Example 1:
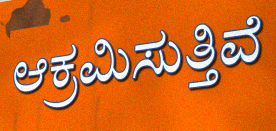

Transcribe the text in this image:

ಆಕ್ರಮಿಸುತ್ತಿವೆ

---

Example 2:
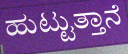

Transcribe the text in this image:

ಹುಟ್ಟುತ್ತಾನೆ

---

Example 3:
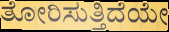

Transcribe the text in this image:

ತೋರಿಸುತ್ತಿದೆಯೇ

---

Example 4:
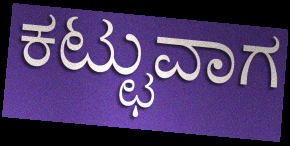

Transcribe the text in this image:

ಕಟ್ಟುವಾಗ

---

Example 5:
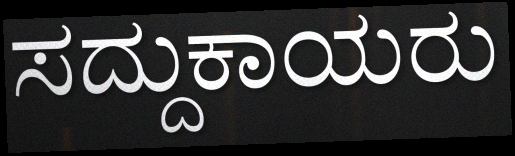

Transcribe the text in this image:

ಸದ್ದುಕಾಯರು